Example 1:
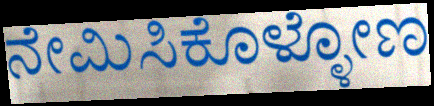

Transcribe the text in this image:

ನೇಮಿಸಿಕೊಳ್ಳೋಣ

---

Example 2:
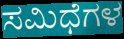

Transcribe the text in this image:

ಸಮಿಧೆಗಳ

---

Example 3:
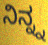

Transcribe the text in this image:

ನಿನ್ನ್ನ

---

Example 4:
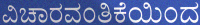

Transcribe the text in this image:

ವಿಚಾರವಂತಿಕೆಯಿಂದ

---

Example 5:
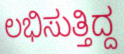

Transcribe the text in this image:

ಲಭಿಸುತ್ತಿದ್ದ